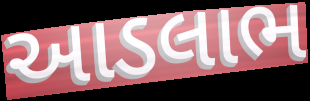
આડલાભ